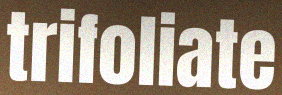
trifoliate